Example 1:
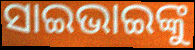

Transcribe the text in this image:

ସାଇଭାଇଙ୍କୁ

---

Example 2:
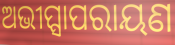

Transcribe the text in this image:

ଅଭୀପ୍ସାପରାୟଣ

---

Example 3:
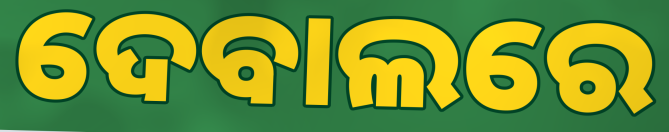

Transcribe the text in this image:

ଦେବାଲରେ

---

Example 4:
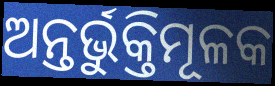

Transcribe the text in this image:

ଅନ୍ତର୍ଭୁକ୍ତିମୂଳକ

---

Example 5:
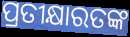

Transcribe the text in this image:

ପ୍ରତୀକ୍ଷାରତଙ୍କ